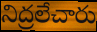
నిద్రలేచారు